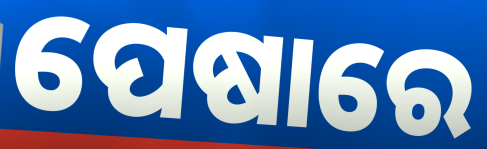
ପେଷାରେ